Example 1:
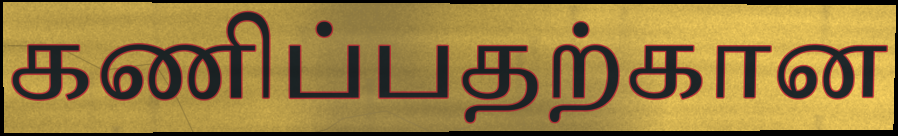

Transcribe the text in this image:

கணிப்பதற்கான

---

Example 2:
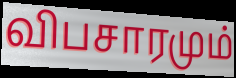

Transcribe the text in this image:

விபசாரமும்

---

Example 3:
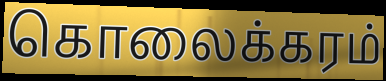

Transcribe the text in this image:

கொலைக்கரம்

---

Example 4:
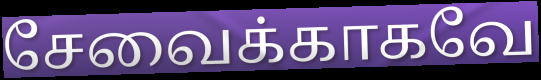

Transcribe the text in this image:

சேவைக்காகவே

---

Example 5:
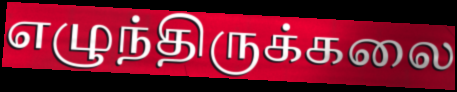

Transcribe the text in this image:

எழுந்திருக்கலை